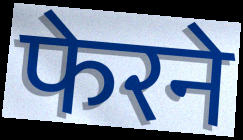
फेरने